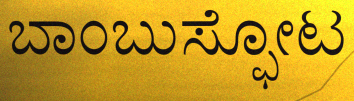
ಬಾಂಬುಸ್ಫೋಟ